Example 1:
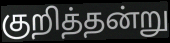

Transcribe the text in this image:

குறித்தன்று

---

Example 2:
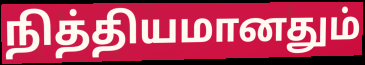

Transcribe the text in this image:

நித்தியமானதும்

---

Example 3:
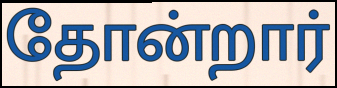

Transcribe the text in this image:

தோன்றார்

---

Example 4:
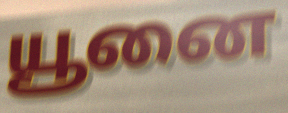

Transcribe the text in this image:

யூனை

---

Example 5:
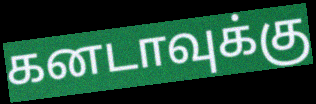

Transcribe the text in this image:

கனடாவுக்கு